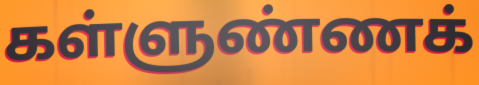
கள்ளுண்ணக்